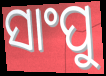
ସାଂପୁ